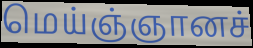
மெய்ஞ்ஞானச்